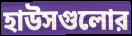
হাউসগুলোর